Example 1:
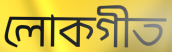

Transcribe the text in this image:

লোকগীত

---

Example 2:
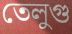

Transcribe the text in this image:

তেলুগু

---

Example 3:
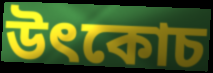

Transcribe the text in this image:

উৎকোচ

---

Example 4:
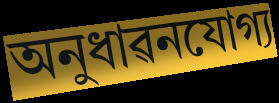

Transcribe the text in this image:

অনুধাৱনযোগ্য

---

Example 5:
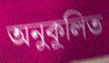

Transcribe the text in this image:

অনুকূলিত